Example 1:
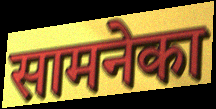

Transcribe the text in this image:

सामनेका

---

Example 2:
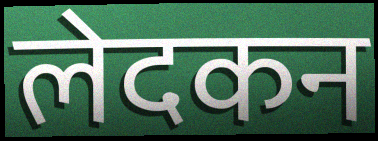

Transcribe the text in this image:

लेदकन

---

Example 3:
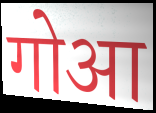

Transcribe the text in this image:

गोआ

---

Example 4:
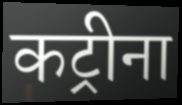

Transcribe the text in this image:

कट्रीना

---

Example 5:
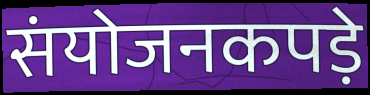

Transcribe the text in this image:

संयोजनकपड़े